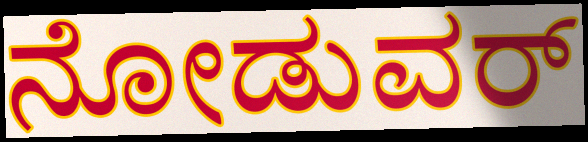
ನೋಡುವರ್